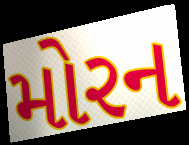
મોરન